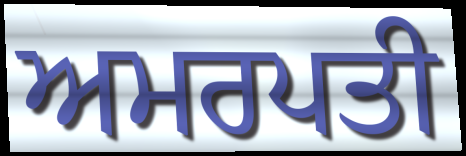
ਅਮਰਪਤੀ